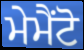
ਮੇਮੈਂਟੋ